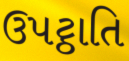
ઉપટ્ઠાતિ